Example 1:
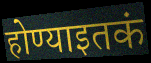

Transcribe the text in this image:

होण्याइतकं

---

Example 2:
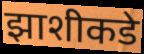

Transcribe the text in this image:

झाशीकडे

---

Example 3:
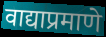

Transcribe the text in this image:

वाद्याप्रमाणे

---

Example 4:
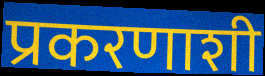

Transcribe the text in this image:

प्रकरणाशी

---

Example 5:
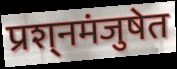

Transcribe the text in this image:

प्रश्नमंजुषेत